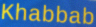
Khabbab